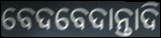
ବେଦବେଦାନ୍ତାଦି